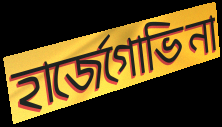
হার্জেগোভিনা